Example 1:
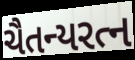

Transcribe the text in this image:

ચૈતન્યરત્ન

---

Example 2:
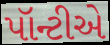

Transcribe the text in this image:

પૉન્ટીએ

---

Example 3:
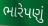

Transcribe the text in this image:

ભારેપણું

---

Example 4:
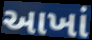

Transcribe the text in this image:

આખાં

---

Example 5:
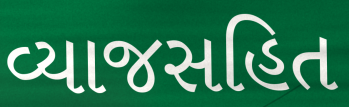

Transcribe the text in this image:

વ્યાજસહિત